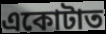
একোটাত